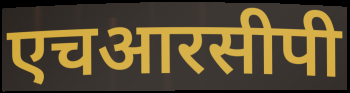
एचआरसीपी